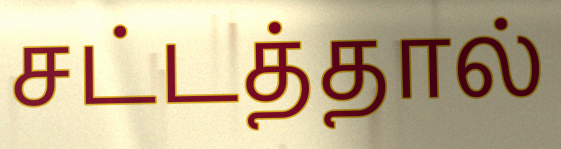
சட்டத்தால்